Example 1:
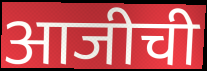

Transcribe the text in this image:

आजीची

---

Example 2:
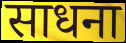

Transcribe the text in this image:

साधना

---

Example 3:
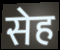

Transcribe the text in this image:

सेह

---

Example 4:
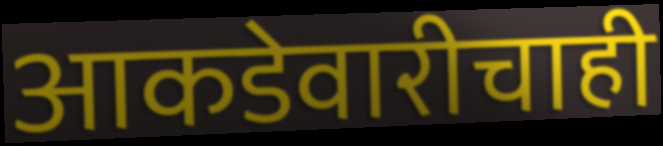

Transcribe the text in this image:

आकडेवारीचाही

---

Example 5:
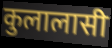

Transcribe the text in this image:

कुलालासी